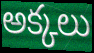
అక్కలు